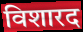
विशारद